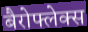
बैरोफ्लेक्स